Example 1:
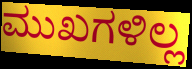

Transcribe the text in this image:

ಮುಖಗಳಿಲ್ಲ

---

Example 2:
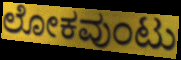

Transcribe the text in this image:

ಲೋಕವುಂಟು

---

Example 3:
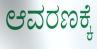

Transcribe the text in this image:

ಆವರಣಕ್ಕೆ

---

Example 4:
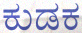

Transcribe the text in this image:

ಕುಡಕ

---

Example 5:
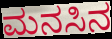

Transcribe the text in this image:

ಮನಸಿನ